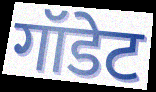
गॉडेट